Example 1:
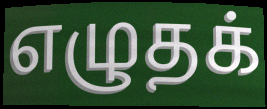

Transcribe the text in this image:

எழுதக்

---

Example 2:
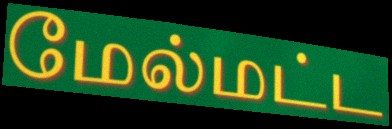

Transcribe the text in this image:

மேல்மட்ட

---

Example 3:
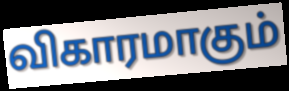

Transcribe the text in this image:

விகாரமாகும்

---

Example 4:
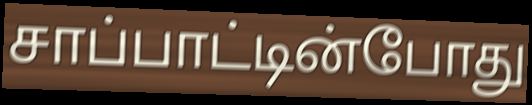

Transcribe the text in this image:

சாப்பாட்டின்போது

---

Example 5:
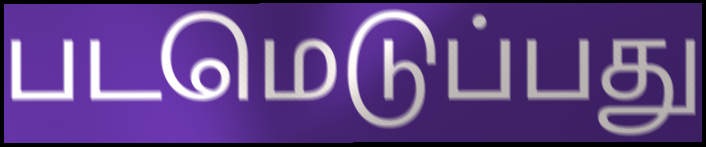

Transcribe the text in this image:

படமெடுப்பது